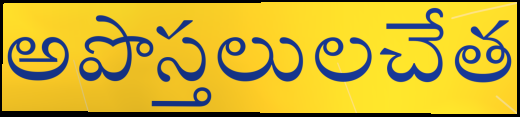
అపొస్తలులచేత